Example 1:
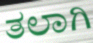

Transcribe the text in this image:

ತಲಾಗಿ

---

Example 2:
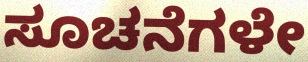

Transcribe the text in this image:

ಸೂಚನೆಗಳೇ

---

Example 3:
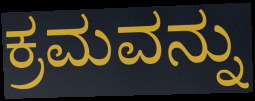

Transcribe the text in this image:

ಕ್ರಮವನ್ನು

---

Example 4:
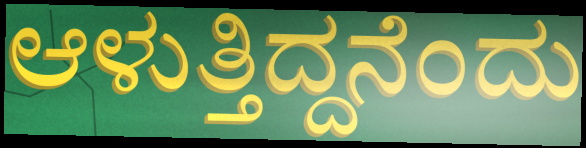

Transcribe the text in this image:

ಆಳುತ್ತಿದ್ದನೆಂದು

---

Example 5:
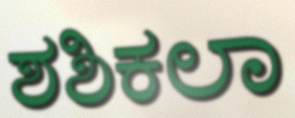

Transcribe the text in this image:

ಶಶಿಕಲಾ